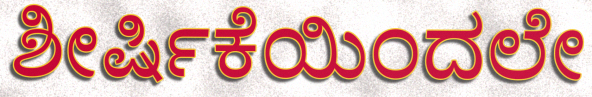
ಶೀರ್ಷಿಕೆಯಿಂದಲೇ